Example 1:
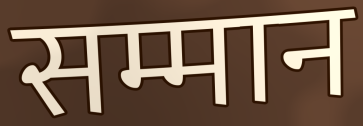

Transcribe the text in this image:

सम्‍मान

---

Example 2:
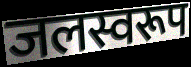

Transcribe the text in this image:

जलस्वरूप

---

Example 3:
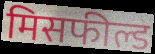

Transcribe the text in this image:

मिसफील्ड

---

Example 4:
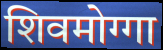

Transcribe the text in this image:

शिवमोग्गा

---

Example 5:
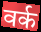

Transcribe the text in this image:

वर्क